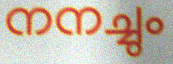
നനച്ചും